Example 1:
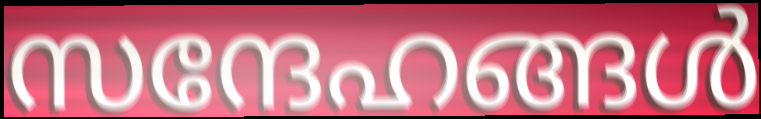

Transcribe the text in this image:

സന്ദേഹങ്ങൾ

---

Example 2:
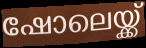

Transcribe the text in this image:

ഷോലെയ്ക്ക്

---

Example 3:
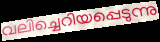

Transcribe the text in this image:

വലിച്ചെറിയപ്പെടുന്നു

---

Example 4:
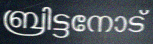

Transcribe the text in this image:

ബ്രിട്ടനോട്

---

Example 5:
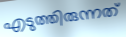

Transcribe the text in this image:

എടുത്തിരുന്നത്